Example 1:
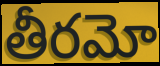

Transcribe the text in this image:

తీరమో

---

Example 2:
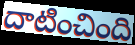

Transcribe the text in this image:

దాటించింది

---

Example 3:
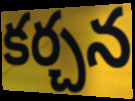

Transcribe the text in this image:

కర్చన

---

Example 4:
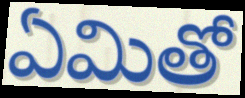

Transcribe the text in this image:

ఏమితో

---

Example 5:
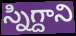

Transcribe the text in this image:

స్నిగ్దాని